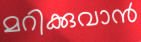
മറിക്കുവാൻ